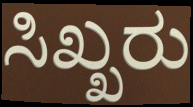
ಸಿಖ್ಖರು